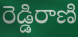
రెడ్డిరాణి